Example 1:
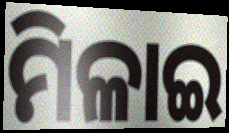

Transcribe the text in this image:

ମିଳାଇ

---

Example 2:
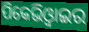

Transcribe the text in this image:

ପିକେଭିଓ୍ବାଇର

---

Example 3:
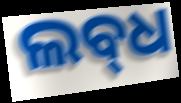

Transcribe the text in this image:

ଲବ୍‌ଧ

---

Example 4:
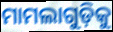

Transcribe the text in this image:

ମାମଲାଗୁଡ଼ିକୁ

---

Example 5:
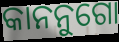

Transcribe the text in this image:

କାନନୁଗୋ